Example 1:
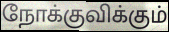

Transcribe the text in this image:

நோக்குவிக்கும்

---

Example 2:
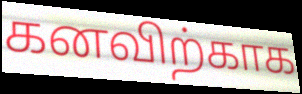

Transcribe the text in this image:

கனவிற்காக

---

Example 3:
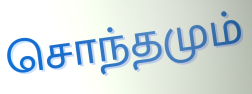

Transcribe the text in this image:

சொந்தமும்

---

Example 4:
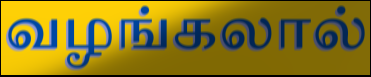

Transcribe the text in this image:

வழங்கலால்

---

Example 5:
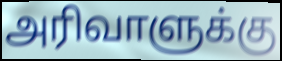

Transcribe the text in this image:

அரிவாளுக்கு